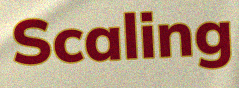
Scaling